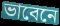
ভাবেনে